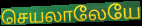
செயலாலேயே